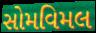
સોમવિમલ